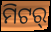
ମିଟର୍